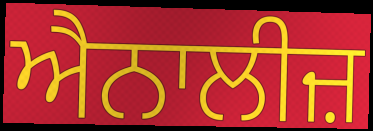
ਐਨਾਲੀਜ਼